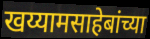
खय्यामसाहेबांच्या